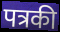
पत्रकी